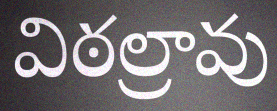
విఠల్రావు